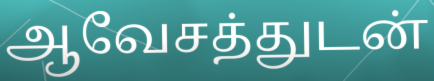
ஆவேசத்துடன்